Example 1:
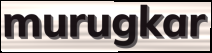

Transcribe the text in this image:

murugkar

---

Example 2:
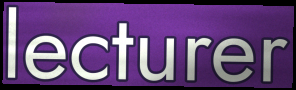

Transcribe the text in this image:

lecturer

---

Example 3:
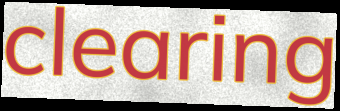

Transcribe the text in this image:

clearing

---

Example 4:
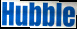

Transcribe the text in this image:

Hubble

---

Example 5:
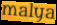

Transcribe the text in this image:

malya